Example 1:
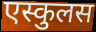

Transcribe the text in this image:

एस्कुलस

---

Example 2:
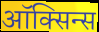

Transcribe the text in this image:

ऑक्सिन्स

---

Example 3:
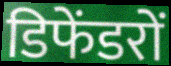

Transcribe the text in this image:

डिफेंडरों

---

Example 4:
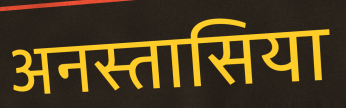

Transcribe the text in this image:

अनस्तासिया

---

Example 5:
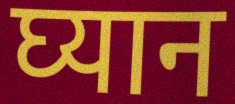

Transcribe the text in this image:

घ्यान